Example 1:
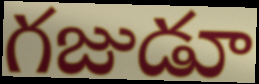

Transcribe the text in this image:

గజుడూ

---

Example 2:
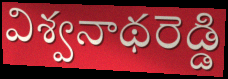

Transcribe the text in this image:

విశ్వనాథరెడ్డి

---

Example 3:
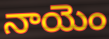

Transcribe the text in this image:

నాయెం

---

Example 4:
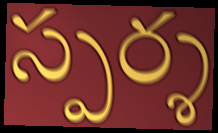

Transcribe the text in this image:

స్పర్శ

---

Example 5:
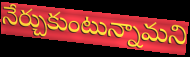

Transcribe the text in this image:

నేర్చుకుంటున్నామని